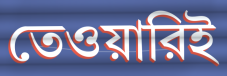
তেওয়ারিই